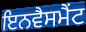
ਇਨਵੈਸਮੈਂਟ